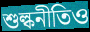
শুল্কনীতিও